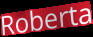
Roberta